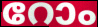
റോം